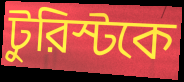
টুরিস্টকে